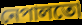
নেপালতো